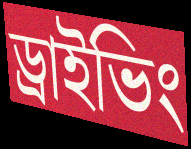
ড্রাইভিং